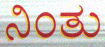
ನಿಂತು